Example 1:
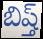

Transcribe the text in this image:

బిష్త్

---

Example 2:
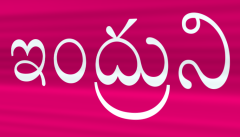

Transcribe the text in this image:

ఇంద్రుని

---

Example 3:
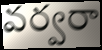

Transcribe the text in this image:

వర్వరా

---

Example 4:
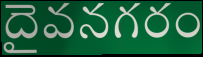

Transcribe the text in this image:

దైవనగరం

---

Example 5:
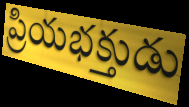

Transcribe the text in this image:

ప్రియభక్తుడు